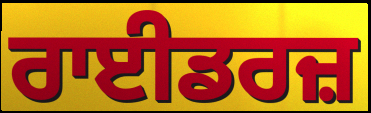
ਰਾਈਡਰਜ਼